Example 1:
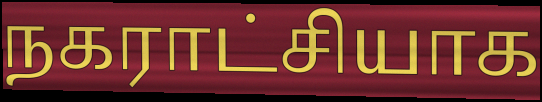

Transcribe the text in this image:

நகராட்சியாக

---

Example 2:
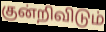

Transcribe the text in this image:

குன்றிவிடும்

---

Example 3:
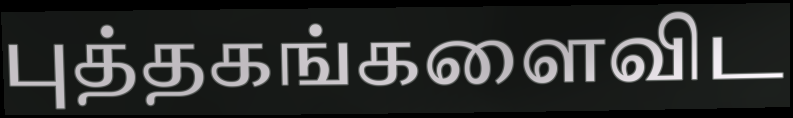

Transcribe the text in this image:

புத்தகங்களைவிட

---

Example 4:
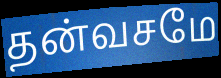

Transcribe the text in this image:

தன்வசமே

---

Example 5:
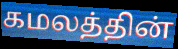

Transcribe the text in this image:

கமலத்தின்